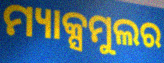
ମ୍ୟାକ୍ସମୁଲର